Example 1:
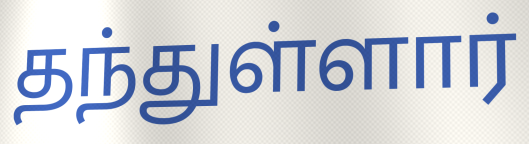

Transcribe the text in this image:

தந்துள்ளார்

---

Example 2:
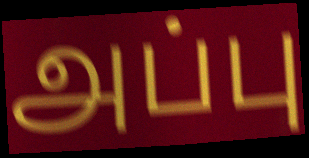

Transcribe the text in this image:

அப்பு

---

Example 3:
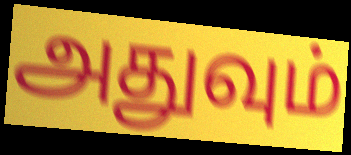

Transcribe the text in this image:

அதுவும்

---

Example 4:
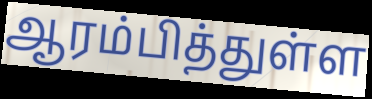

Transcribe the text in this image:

ஆரம்பித்துள்ள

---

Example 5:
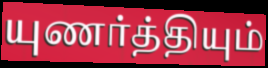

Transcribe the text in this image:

யுணர்த்தியும்